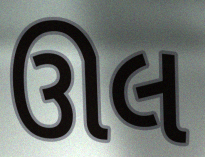
ઊલ